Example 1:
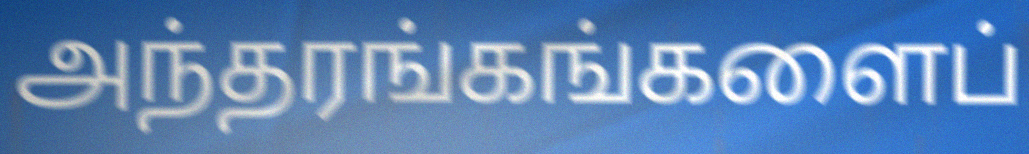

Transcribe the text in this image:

அந்தரங்கங்களைப்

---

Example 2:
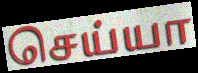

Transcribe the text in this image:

செய்யா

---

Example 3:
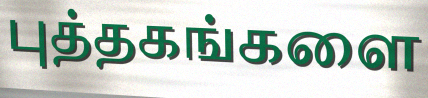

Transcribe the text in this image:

புத்தகங்களை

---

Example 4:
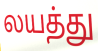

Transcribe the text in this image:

லயத்து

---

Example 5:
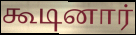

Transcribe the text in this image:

கூடினார்